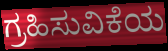
ಗ್ರಹಿಸುವಿಕೆಯ